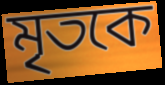
মৃতকে